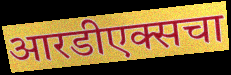
आरडीएक्सचा